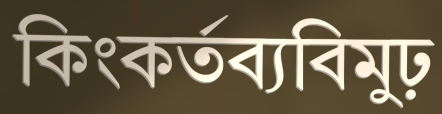
কিংকর্তব্যবিমুঢ়